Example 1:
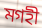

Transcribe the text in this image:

মগহী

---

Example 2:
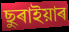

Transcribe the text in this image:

ছুৰাইয়াৰ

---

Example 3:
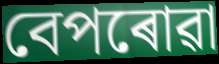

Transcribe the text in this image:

বেপৰোৱা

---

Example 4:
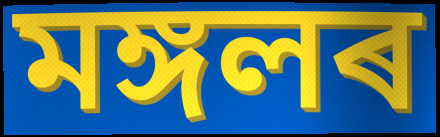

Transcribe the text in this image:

মঙ্গলৰ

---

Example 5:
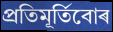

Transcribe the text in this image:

প্ৰতিমূৰ্তিবোৰ